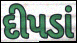
દીપડાં